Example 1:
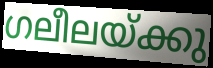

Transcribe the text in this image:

ഗലീലയ്ക്കു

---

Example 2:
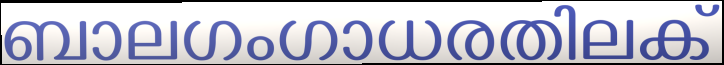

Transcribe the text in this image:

ബാലഗംഗാധരതിലക്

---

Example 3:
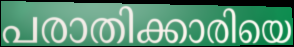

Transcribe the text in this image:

പരാതിക്കാരിയെ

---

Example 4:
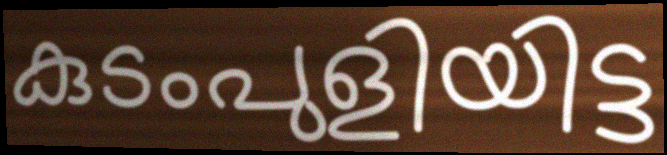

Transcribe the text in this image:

കുടംപുളിയിട്ട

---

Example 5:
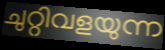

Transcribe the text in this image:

ചുറ്റിവളയുന്ന